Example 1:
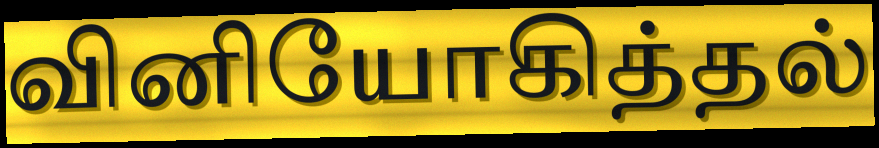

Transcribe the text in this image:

வினியோகித்தல்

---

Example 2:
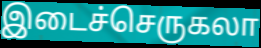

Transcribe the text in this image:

இடைச்செருகலா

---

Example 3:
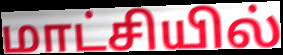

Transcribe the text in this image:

மாட்சியில்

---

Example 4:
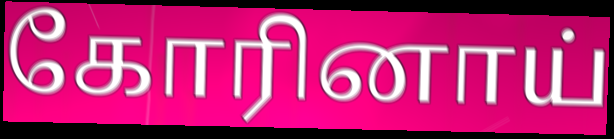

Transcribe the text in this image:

கோரினாய்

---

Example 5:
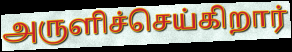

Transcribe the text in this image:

அருளிச்செய்கிறார்